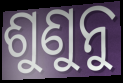
ଶୁଣୁନୁ